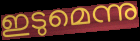
ഇടുമെന്നു